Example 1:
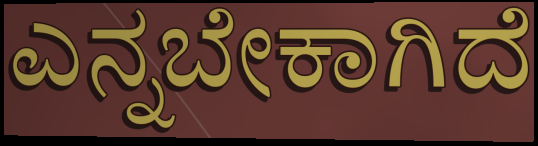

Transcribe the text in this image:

ಎನ್ನಬೇಕಾಗಿದೆ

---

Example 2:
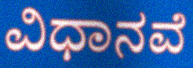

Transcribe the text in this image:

ವಿಧಾನವೆ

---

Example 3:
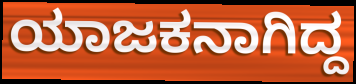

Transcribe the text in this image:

ಯಾಜಕನಾಗಿದ್ದ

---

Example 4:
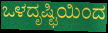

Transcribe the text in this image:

ಒಳದೃಷ್ಟಿಯಿಂದ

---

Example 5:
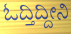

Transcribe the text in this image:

ಓದ್ತಿದ್ದೀನಿ